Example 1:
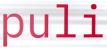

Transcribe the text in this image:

puli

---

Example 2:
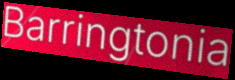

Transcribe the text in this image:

Barringtonia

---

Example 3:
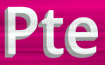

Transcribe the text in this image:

Pte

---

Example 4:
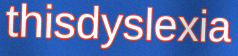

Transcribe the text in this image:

thisdyslexia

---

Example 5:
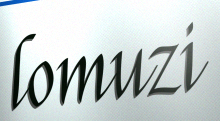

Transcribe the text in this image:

lomuzi